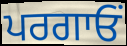
ਪਰਗਾਓਂ